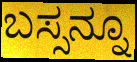
ಬಸ್ಸನ್ನೂ